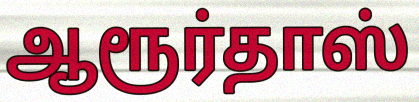
ஆரூர்தாஸ்